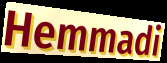
Hemmadi